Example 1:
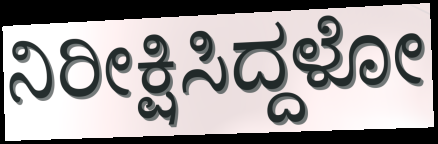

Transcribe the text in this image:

ನಿರೀಕ್ಷಿಸಿದ್ದಳೋ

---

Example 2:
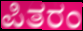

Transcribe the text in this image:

ಪಿತರಂ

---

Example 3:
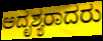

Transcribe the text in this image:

ಅದೃಶ್ಯರಾದರು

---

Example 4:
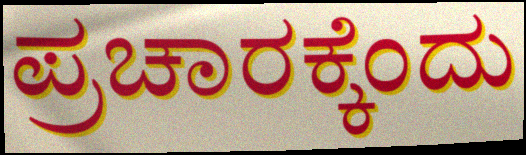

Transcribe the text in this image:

ಪ್ರಚಾರಕ್ಕೆಂದು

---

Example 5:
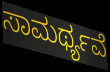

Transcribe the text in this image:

ಸಾಮರ್ಥ್ಯವೆ